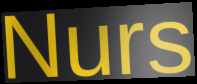
Nurs